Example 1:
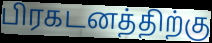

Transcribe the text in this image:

பிரகடனத்திற்கு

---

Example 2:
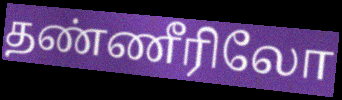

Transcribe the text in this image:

தண்ணீரிலோ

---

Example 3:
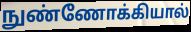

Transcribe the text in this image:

நுண்ணோக்கியால்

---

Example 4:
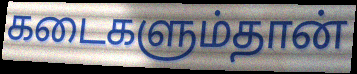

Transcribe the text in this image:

கடைகளும்தான்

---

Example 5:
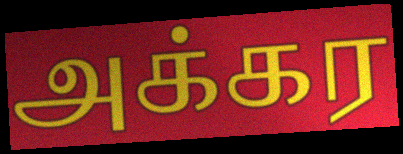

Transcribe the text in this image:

அக்கர